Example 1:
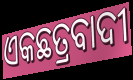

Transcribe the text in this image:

ଏକଛତ୍ରବାଦୀ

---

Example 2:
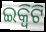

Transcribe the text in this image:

ଇକ୍ବିଟି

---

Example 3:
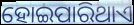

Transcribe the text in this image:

ହୋଇପାରିଥାଏ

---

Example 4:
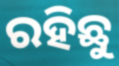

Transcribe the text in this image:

ରହିଛୁ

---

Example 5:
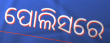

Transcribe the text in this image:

ପୋଲିସରେ